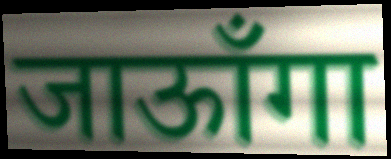
जाऊाँगा